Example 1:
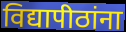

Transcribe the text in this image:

विद्यापीठांना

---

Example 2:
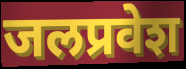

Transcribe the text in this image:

जलप्रवेश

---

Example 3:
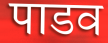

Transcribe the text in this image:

पाडव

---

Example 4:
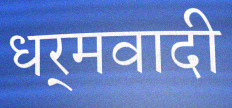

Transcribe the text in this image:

धर्मवादी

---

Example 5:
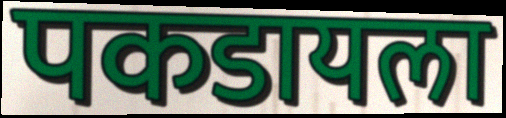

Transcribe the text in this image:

पकडायला